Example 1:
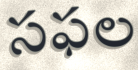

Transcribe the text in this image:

సఫల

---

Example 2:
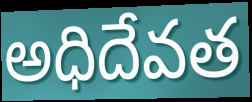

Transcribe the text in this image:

అధిదేవత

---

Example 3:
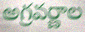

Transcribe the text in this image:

అగ్రవర్ణాల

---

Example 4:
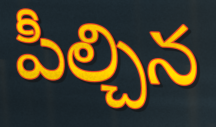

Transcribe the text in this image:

పీల్చిన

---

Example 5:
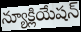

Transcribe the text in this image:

న్యూక్లియేషన్